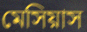
মেসিয়াস